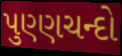
પુણ્ણચન્દો